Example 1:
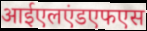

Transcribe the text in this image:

आईएलएंडएफएस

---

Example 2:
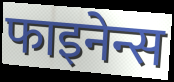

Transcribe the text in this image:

फाइनेन्स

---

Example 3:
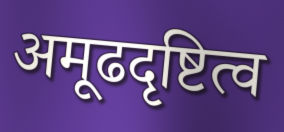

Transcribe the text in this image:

अमूढदृष्टित्व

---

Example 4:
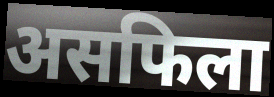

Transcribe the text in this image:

असफिला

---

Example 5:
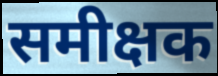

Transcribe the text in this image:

समीक्षक